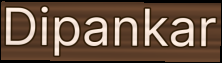
Dipankar